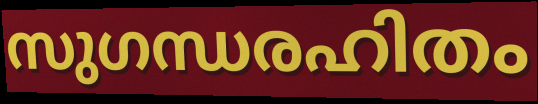
സുഗന്ധരഹിതം